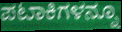
ಪಟಾಕಿಗಳನ್ನೂ